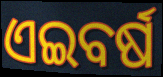
ଏଇବର୍ଷ